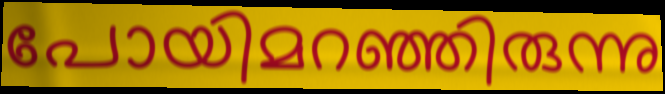
പോയിമറഞ്ഞിരുന്നു